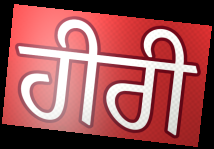
ਹੀਰੀ